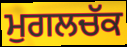
ਮੁਗਲਚੱਕ